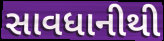
સાવધાનીથી